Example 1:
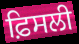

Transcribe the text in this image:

ਫ਼ਿਸਲੀ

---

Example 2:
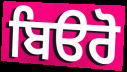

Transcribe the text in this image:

ਬਿੳਰੋ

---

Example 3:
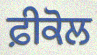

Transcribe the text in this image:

ਫ਼ੀਕੋਲ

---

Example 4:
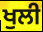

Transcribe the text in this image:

ਖੁਲੀ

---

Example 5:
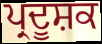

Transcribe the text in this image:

ਪ੍ਰਦੂਸ਼ਕ